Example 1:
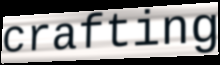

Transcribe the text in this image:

crafting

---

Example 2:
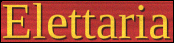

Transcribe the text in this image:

Elettaria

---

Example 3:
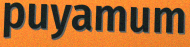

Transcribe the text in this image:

puyamum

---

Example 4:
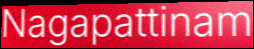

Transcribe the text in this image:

Nagapattinam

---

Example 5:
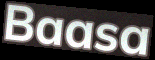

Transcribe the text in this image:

Baasa